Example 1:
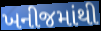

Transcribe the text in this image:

ખનીજમાંથી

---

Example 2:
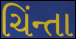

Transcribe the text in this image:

ચિંન્તા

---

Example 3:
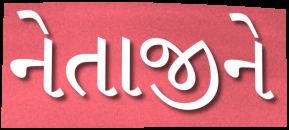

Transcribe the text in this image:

નેતાજીને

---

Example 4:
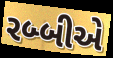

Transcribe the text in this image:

રબ્બીએ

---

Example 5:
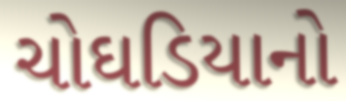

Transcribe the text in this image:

ચોઘડિયાનો